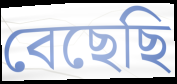
বেছেছি